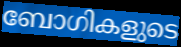
ബോഗികളുടെ